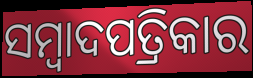
ସମ୍ବାଦପତ୍ରିକାର